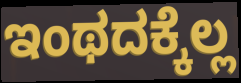
ಇಂಥದಕ್ಕೆಲ್ಲ